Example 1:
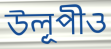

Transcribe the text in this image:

উলূপীও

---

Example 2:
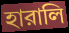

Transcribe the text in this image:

হারালি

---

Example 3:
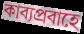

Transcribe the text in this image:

কাব্যপ্রবাহে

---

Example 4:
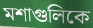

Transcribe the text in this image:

মশাগুলিকে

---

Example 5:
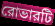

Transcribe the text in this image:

রোভারটি